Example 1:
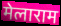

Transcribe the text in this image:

मेलाराम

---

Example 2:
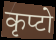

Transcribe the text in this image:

कृप्टो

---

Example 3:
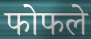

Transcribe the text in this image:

फोफले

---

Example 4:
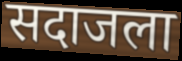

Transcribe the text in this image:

सदाजला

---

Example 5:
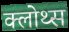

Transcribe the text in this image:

क्लोथ्स